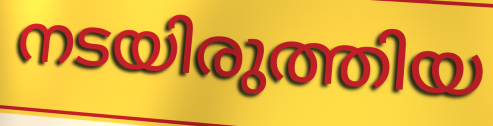
നടയിരുത്തിയ